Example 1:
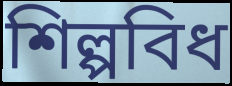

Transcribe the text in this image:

শিল্পবিধ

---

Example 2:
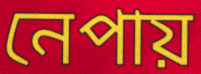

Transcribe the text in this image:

নেপায়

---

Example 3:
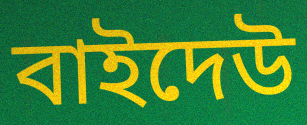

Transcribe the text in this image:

বাইদেউ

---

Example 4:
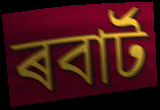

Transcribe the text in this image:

ৰবাৰ্ট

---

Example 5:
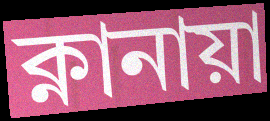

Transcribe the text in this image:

ক্নানায়া